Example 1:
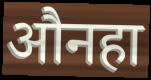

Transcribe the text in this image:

औनहा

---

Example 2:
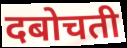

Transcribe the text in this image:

दबोचती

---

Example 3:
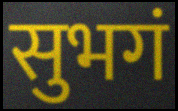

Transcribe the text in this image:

सुभगं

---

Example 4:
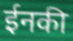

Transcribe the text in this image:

ईनकी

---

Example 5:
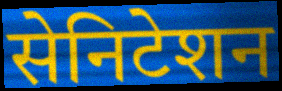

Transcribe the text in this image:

सेनिटेशन